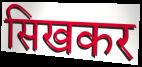
सिखकर